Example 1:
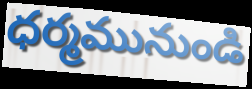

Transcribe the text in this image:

ధర్మమునుండి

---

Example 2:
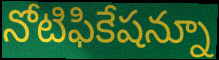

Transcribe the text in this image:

నోటిఫికేషన్నూ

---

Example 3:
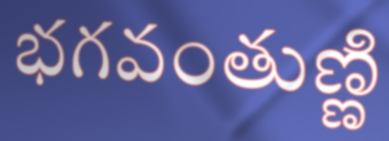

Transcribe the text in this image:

భగవంతుణ్ణి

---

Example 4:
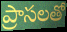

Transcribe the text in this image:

ప్రాసలతో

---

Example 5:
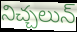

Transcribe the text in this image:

నిచ్చలున్